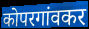
कोपरगांवकर